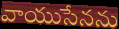
వాయుసేనను